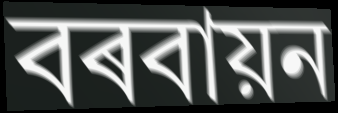
বৰবায়ন